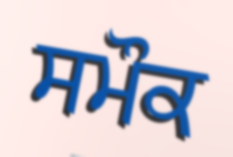
ਸਮੌਕ